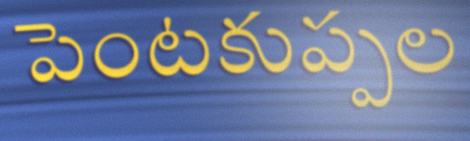
పెంటకుప్పల